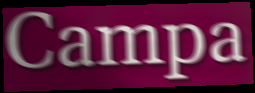
Campa